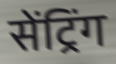
सेंट्रिंग